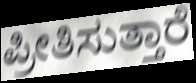
ಪ್ರೀತಿಸುತ್ತಾರೆ